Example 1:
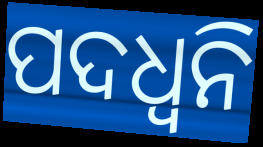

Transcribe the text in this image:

ପଦଧ୍ୱନି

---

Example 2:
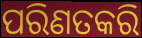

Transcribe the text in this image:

ପରିଣତକରି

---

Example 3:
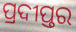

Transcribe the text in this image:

ପ୍ରଦୀପ୍ତର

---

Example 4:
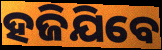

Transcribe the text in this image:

ହଜିଯିବେ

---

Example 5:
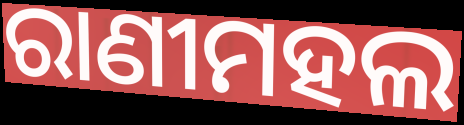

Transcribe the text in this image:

ରାଣୀମହଲ